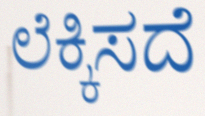
ಲೆಕ್ಕಿಸದೆ